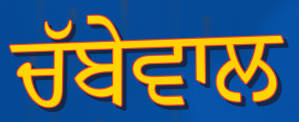
ਚੱਬੇਵਾਲ